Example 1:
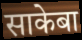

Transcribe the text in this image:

साकेबा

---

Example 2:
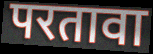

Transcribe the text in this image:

परतावा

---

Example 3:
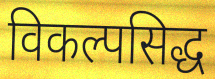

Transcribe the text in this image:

विकल्पसिद्ध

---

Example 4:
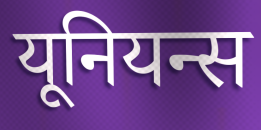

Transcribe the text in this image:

यूनियन्स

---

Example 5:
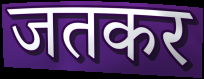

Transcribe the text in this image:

जतकर